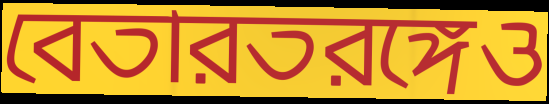
বেতারতরঙ্গেও